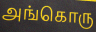
அங்கொரு